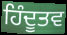
ਹਿੰਦੂਤਵ